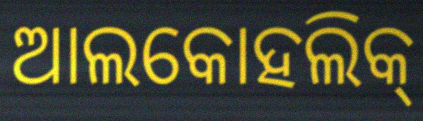
ଆଲକୋହଲିକ୍